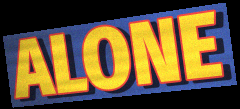
ALONE